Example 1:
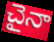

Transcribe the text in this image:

చైనా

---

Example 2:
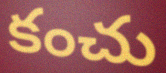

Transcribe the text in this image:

కంచు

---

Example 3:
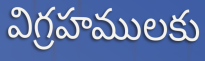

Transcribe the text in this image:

విగ్రహములకు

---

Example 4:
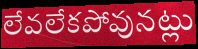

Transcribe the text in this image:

లేవలేకపోవునట్లు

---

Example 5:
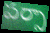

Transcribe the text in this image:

పర్సా